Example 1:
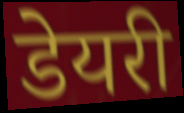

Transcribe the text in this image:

डेयरी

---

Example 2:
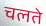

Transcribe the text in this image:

चलते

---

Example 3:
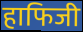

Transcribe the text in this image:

हाफिजी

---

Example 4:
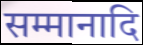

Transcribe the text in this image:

सम्मानादि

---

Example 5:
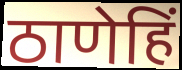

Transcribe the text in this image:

ठाणेहिं